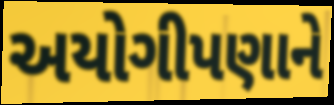
અયોગીપણાને